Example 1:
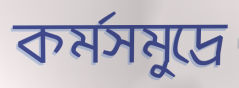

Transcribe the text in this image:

কর্মসমুদ্রে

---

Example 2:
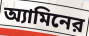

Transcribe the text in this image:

অ্যামিনের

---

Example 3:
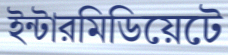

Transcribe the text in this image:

ইন্টারমিডিয়েটে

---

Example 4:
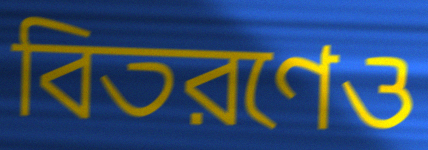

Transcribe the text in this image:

বিতরণেও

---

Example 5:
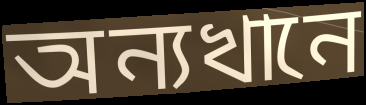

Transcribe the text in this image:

অন্যখানে